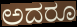
ಅದರೂ